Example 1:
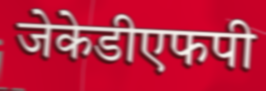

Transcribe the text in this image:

जेकेडीएफपी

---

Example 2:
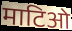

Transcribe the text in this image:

माटिओ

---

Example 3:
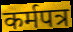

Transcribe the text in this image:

कर्मपत्र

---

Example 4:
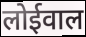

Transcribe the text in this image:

लोईवाल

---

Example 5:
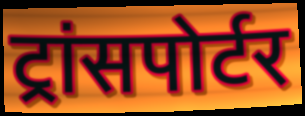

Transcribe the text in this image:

ट्रांसपोर्टर